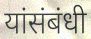
यांसंबंधी